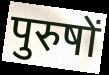
पुरुषों